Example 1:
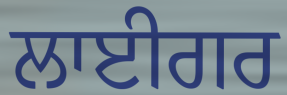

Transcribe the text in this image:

ਲਾਈਗਰ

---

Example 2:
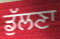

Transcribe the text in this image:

ਡੁੱਲਣਾ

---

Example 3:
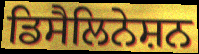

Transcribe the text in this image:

ਡਿਸੈਲਿਨੇਸ਼ਨ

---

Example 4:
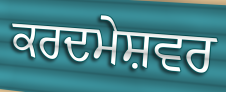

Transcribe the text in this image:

ਕਰਦਮੇਸ਼ਵਰ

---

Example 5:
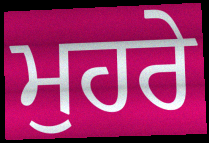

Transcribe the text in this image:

ਮੁਹਰੇ